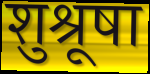
शुश्रूषा